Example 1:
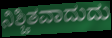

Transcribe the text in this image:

ನಿಶ್ಚಿತವಾದುದು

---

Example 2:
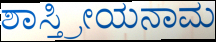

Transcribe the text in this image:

ಶಾಸ್ತ್ರೀಯನಾಮ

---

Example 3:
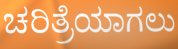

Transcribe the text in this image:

ಚರಿತ್ರೆಯಾಗಲು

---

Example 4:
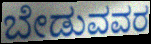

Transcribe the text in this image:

ಬೇಡುವವರ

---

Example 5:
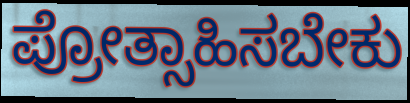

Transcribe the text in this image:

ಪ್ರೋತ್ಸಾಹಿಸಬೇಕು